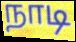
நாடி